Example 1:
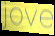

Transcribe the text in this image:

jove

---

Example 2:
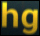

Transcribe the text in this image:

hg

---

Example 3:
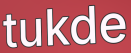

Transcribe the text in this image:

tukde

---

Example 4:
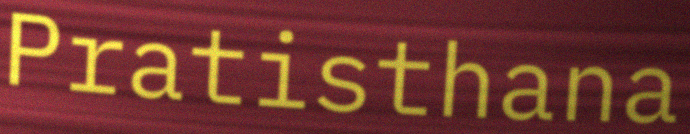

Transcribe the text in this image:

Pratisthana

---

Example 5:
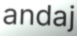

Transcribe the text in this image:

andaj